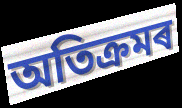
অতিক্ৰমৰ